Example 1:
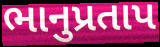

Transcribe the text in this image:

ભાનુપ્રતાપ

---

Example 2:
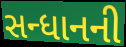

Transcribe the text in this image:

સન્ધાનની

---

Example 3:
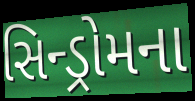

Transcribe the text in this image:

સિન્ડ્રોમના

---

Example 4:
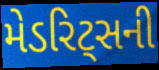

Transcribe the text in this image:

મેડરિટ્સની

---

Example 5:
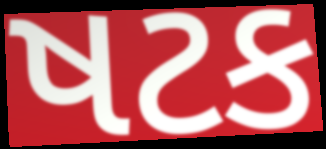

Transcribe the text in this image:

ષટક